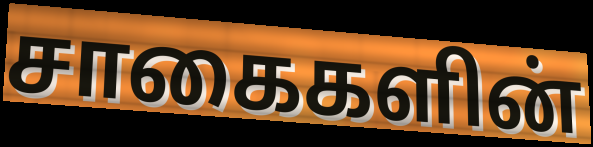
சாகைகளின்